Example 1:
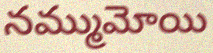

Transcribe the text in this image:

నమ్ముమోయి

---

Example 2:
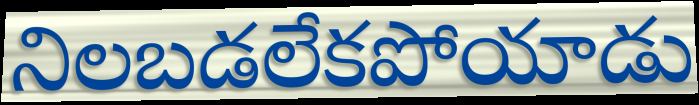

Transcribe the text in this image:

నిలబడలేకపోయాడు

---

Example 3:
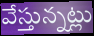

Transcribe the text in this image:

వేస్తున్నట్లు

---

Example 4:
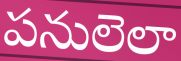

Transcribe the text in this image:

పనులెలా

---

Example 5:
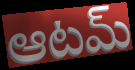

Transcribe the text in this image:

ఆటమ్